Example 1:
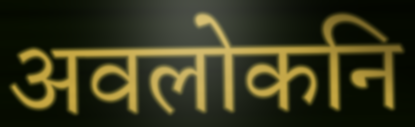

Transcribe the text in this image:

अवलोकनि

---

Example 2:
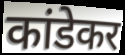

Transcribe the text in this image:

कांडेकर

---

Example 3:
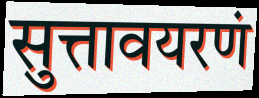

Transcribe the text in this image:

सुत्तावयरणं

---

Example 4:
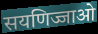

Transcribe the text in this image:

सयणिज्जाओ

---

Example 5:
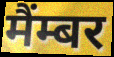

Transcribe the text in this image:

मैंम्बर